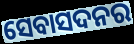
ସେବାସଦନର